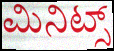
ಮಿನಿಟ್ಸ್